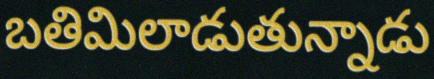
బతిమిలాడుతున్నాడు